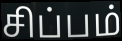
சிப்பம்